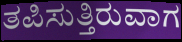
ತಪಿಸುತ್ತಿರುವಾಗ